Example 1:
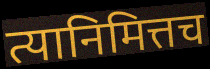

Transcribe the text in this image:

त्यानिमित्तच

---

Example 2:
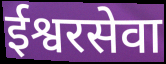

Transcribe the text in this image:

ईश्वरसेवा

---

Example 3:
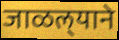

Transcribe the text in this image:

जाळल्याने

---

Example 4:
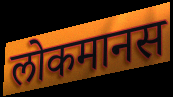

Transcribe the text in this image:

लोकमानस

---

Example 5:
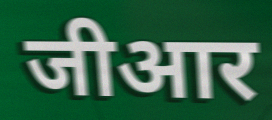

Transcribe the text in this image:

जीआर